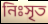
নিঃসৃত